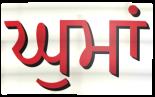
ਘੁਮਾਂ